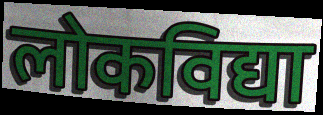
लोकविद्या